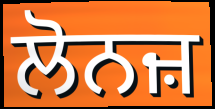
ਲੋਨਜ਼